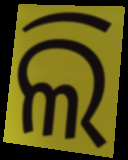
ଲି